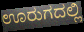
ಊರುಗದಲ್ಲಿ